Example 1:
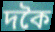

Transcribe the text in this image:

দকৈ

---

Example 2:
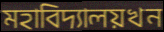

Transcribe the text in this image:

মহাবিদ্যালয়খন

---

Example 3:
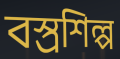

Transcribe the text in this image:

বস্ত্ৰশিল্প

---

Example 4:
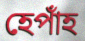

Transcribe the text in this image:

হেপাঁহ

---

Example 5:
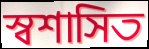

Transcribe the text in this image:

স্বশাসিত